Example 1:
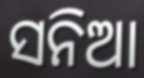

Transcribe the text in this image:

ସନିଆ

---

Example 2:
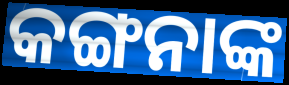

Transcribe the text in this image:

କଙ୍ଗନାଙ୍କ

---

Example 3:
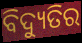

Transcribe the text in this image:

ବିଦ୍ୟୁତିର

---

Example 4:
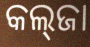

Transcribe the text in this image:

କଲ୍‌ଜା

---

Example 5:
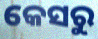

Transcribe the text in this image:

କେସରୁ